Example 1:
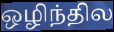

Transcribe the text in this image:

ஒழிந்தில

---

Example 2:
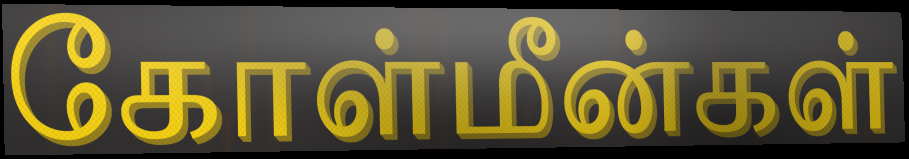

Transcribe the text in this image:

கோள்மீன்கள்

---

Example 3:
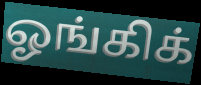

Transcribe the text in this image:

ஓங்கிக்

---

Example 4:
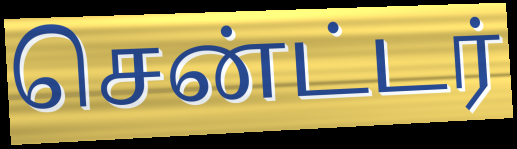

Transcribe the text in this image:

சென்ட்டர்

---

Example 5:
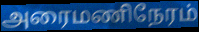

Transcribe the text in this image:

அரைமணிநேரம்